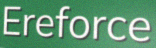
Ereforce